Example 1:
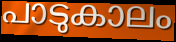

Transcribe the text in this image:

പാടുകാലം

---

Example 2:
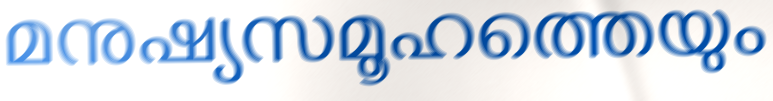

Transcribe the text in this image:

മനുഷ്യസമൂഹത്തെയും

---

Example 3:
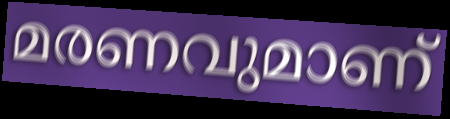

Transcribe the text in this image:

മരണവുമാണ്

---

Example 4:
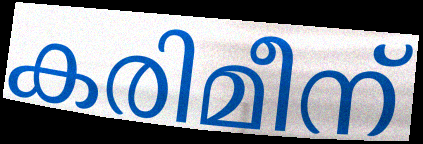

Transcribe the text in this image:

കരിമീന്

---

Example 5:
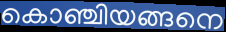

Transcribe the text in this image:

കൊഞ്ചിയങ്ങനെ